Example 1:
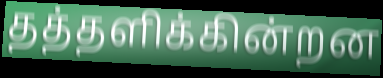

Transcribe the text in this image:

தத்தளிக்கின்றன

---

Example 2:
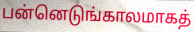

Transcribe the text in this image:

பன்னெடுங்காலமாகத்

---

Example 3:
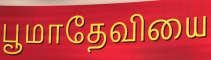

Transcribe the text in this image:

பூமாதேவியை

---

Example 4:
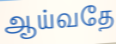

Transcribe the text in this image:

ஆய்வதே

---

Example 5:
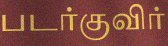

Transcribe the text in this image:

படர்குவிர்